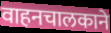
वाहनचालकाने